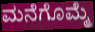
ಮನೆಗೊಮ್ಮೆ